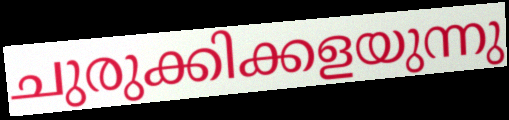
ചുരുക്കിക്കളയുന്നു